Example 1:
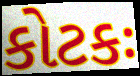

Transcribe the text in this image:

કોટકઃ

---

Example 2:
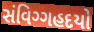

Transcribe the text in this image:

સંવિગ્ગહદયો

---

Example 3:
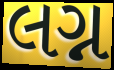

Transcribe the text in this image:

લગ્ન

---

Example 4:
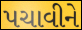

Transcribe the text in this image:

પચાવીને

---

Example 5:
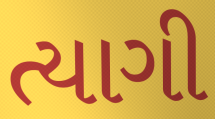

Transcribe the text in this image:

ત્યાગી